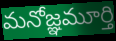
మనోజ్ఞమూర్తి